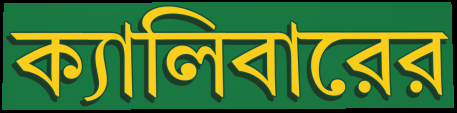
ক্যালিবারের